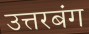
उत्तरबंग